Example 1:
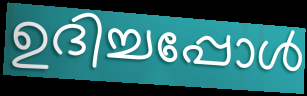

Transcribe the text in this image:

ഉദിച്ചപ്പോൾ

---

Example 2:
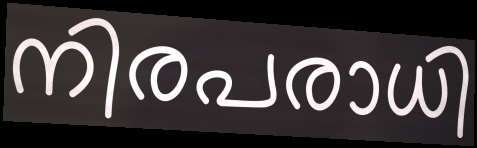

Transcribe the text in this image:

നിരപരാധി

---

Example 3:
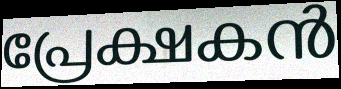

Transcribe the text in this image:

പ്രേക്ഷകൻ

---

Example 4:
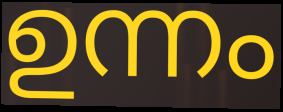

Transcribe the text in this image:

ഉന്നം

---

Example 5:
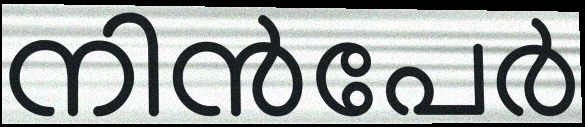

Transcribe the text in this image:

നിൻപേർ